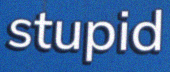
stupid